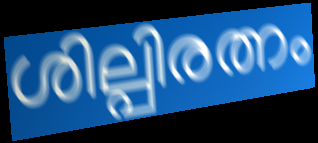
ശില്പിരത്നം